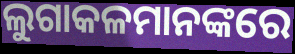
ଲୁଗାକଳମାନଙ୍କରେ